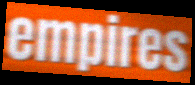
empires